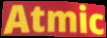
Atmic